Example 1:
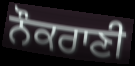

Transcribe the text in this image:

ਨੌਕਰਾਣੀ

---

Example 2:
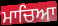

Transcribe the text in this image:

ਮਾਚਿਆ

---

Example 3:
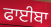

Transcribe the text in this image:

ਫਾਈਬਾ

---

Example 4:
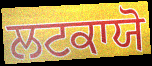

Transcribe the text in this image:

ਲਟਕਾਯੋ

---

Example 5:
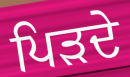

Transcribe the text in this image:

ਪਿੜਦੇ